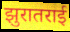
झुरातराई